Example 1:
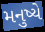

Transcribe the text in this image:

મનુષ્યે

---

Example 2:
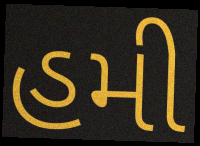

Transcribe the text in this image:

હમી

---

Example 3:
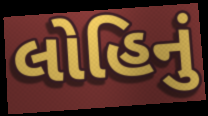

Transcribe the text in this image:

લોહિનું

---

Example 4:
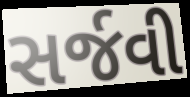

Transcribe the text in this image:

સર્જવી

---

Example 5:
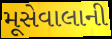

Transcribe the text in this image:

મૂસેવાલાની